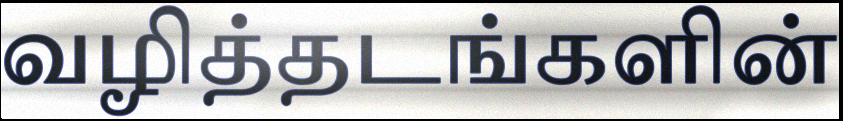
வழித்தடங்களின்